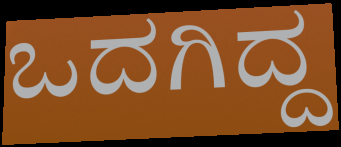
ಒದಗಿದ್ದ